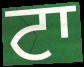
ਟਾ